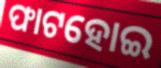
ଫାଟହୋଇ